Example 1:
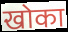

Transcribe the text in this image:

खोका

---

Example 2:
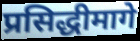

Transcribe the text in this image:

प्रसिद्धीमागे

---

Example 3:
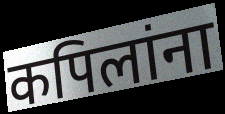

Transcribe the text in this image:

कपिलांना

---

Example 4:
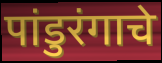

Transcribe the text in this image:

पांडुरंगाचे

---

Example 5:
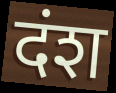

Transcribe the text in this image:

दंश